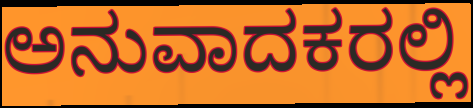
ಅನುವಾದಕರಲ್ಲಿ